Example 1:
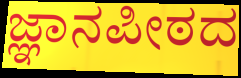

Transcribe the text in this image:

ಜ್ಞಾನಪೀಠದ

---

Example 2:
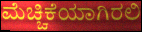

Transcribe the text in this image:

ಮೆಚ್ಚಿಕೆಯಾಗಿರಲಿ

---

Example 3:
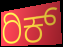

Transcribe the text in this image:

ರಿಕ್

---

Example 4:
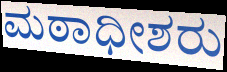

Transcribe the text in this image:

ಮಠಾಧೀಶರು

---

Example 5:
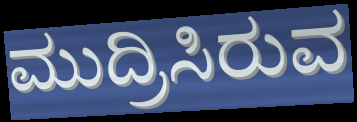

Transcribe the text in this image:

ಮುದ್ರಿಸಿರುವ